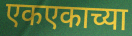
एकएकाच्या